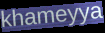
khameyya